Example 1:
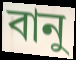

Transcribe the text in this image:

বানু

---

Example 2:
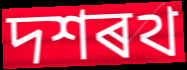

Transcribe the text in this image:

দশৰথ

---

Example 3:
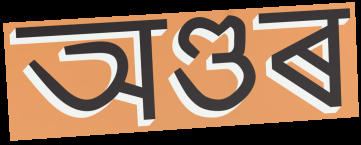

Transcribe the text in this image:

অণ্ডৰ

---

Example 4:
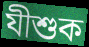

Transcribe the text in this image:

যীশুক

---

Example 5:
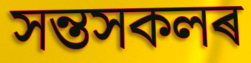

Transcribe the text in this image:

সন্তসকলৰ